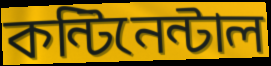
কন্টিনেন্টাল